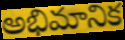
అభిమానిక